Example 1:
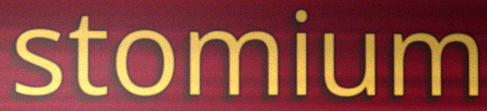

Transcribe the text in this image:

stomium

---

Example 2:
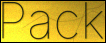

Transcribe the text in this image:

Pack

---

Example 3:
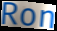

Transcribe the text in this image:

Ron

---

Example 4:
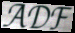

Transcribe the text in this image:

ADF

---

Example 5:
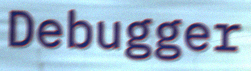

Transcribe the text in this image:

Debugger